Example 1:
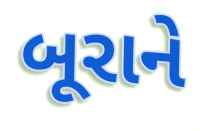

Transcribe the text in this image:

બૂરાને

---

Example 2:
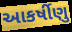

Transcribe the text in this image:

આકર્ષીણુ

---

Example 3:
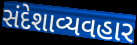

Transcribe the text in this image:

સંદેશાવ્યવહાર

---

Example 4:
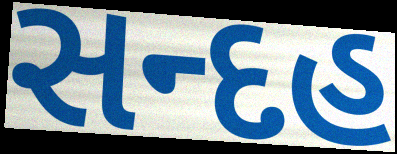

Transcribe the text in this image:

સન્દહ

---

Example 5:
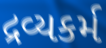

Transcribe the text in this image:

દ્રવ્યકર્મ